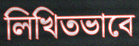
লিখিতভাবে